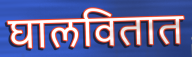
घालवितात